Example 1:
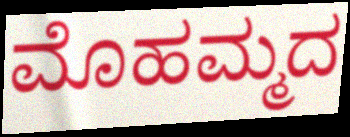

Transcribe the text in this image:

ಮೊಹಮ್ಮದ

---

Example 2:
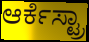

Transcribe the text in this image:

ಆರ್ಕೆಸ್ಟ್ರಾ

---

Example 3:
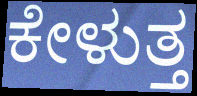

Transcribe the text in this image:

ಕೇಳುತ್ತ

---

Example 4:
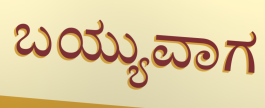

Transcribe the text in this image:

ಬಯ್ಯುವಾಗ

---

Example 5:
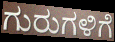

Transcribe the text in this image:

ಗುರುಗಳಿಗೆ